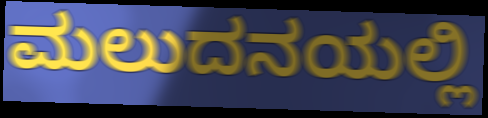
ಮಲುದನಯಲ್ಲಿ